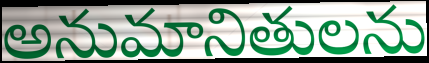
అనుమానితులను